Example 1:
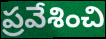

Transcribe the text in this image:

ప్రవేశించి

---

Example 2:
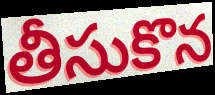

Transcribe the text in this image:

తీసుకొన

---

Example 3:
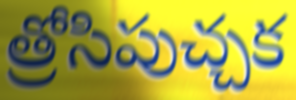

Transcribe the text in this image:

త్రోసిపుచ్చక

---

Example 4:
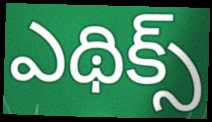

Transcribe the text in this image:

ఎథిక్స్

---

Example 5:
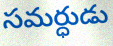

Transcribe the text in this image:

సమర్ధుడు